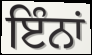
ਇੰਨਾਂ